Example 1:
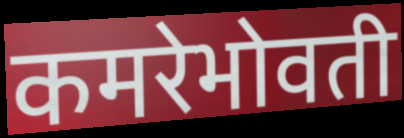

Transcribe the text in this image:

कमरेभोवती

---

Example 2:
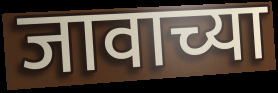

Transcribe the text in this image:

जावाच्या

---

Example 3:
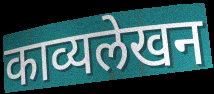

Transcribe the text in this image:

काव्यलेखन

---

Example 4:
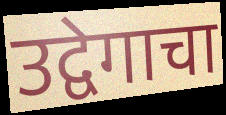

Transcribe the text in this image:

उद्वेगाचा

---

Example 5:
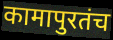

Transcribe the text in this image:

कामापुरतंच